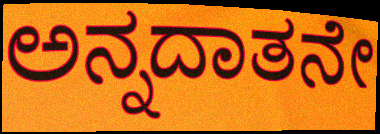
ಅನ್ನದಾತನೇ